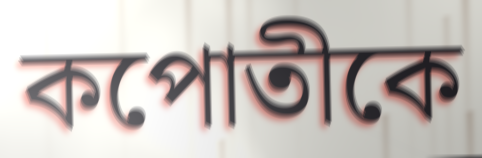
কপোতীকে